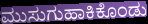
ಮುಸುಗುಹಾಕಿಕೊಂಡು